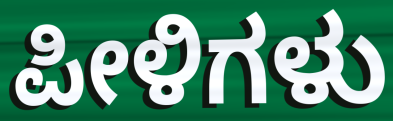
ಪೀಳಿಗಳು